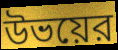
উভয়ের